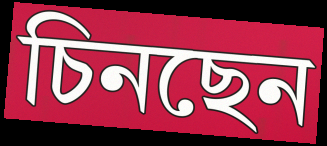
চিনছেন